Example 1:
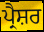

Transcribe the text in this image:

ਪ੍ਰੈਸ਼ਰ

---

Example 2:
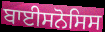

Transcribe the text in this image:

ਬਾਈਸਨੋਸਿਸ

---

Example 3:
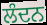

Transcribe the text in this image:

ਲੰਦਨ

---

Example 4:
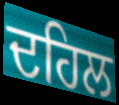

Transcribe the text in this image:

ਦਹਿਲ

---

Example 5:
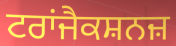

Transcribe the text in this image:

ਟਰਾਂਜੈਕਸ਼ਨਜ਼